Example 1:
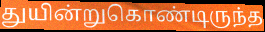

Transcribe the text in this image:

துயின்றுகொண்டிருந்த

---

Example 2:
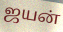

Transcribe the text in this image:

ஜயன்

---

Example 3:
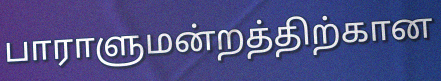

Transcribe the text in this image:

பாராளுமன்றத்திற்கான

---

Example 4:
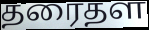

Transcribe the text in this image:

தரைதள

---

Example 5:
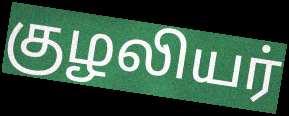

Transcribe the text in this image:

குழலியர்